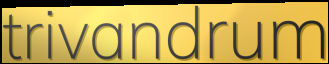
trivandrum